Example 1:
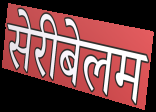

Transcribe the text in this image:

सेरीबेलम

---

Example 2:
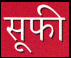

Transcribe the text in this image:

सूफी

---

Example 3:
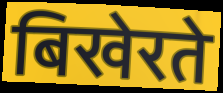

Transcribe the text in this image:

बिखेरते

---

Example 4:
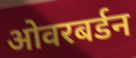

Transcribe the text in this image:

ओवरबर्डन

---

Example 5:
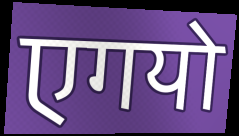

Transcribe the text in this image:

एगयो